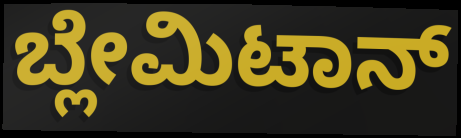
ಬ್ಲೇಮಿಟಾನ್